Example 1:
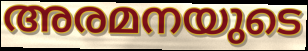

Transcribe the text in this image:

അരമനയുടെ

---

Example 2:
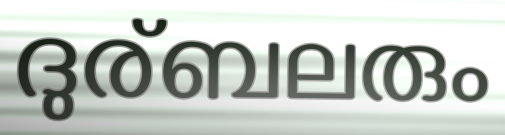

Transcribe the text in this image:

ദുര്ബലരും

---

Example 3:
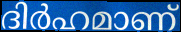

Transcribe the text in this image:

ദിർഹമാണ്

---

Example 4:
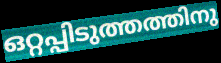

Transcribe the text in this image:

ഒറ്റപ്പിടുത്തത്തിനു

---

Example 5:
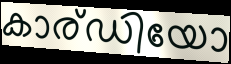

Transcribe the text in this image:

കാര്ഡിയോ